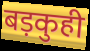
बड़कुही